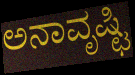
ಅನಾವೃಷ್ಟಿ